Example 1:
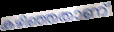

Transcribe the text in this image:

കഴിഞ്ഞതാണ്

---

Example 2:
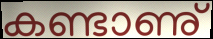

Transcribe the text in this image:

കണ്ടാണു്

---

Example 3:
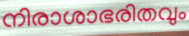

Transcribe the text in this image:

നിരാശാഭരിതവും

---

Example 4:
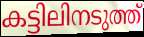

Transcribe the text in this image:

കട്ടിലിനടുത്ത്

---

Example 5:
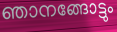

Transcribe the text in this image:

ഞാനങ്ങോട്ടും